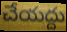
చేయద్దు